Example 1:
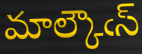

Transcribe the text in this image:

మాల్కౌఁస్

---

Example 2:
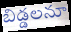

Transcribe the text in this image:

బిడ్డలనూ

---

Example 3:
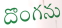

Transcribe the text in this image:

దొంగను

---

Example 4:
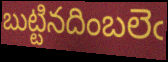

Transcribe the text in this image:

బుట్టినదింబలెఁ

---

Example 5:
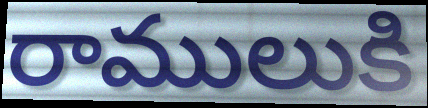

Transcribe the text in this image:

రాములుకి